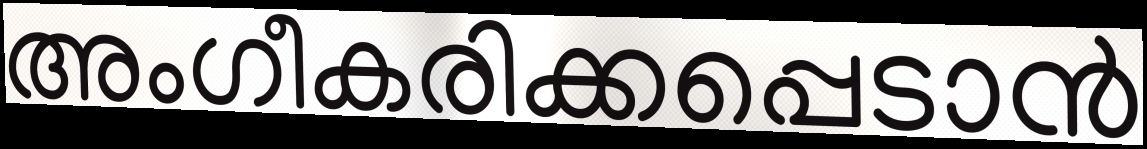
അംഗീകരിക്കപ്പെടാൻ